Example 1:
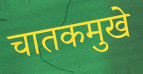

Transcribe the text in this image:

चातकमुखे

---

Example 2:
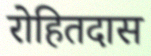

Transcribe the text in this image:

रोहितदास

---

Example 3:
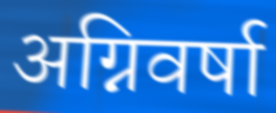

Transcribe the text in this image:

अग्निवर्षा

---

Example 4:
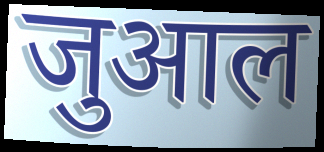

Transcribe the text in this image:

जुआल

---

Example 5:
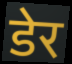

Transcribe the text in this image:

डेर